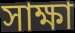
সাক্ষা